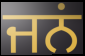
ਜਨਂ